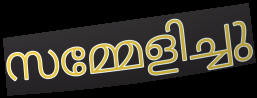
സമ്മേളിച്ചു